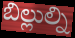
బిల్లుల్ని